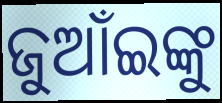
ଜୁଆଁଇଙ୍କୁ